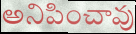
అనిపించావు